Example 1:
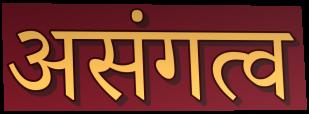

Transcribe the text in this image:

असंगत्व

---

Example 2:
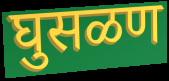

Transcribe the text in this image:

घुसळण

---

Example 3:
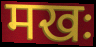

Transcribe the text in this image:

मखः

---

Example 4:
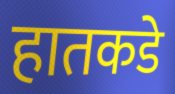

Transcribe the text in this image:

हातकडे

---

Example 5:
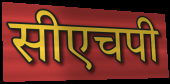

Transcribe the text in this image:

सीएचपी